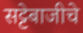
सट्टेबाजीचे